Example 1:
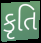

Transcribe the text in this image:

કૃતિ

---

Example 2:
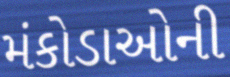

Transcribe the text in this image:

મંકોડાઓની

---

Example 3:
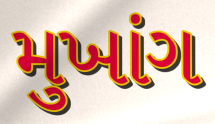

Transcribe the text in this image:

મુખાંગ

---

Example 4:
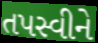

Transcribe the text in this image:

તપસ્વીને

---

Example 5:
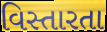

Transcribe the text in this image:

વિસ્તારતા